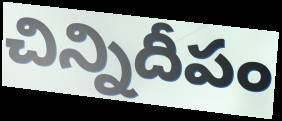
చిన్నిదీపం